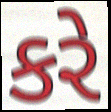
કરે